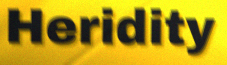
Heridity